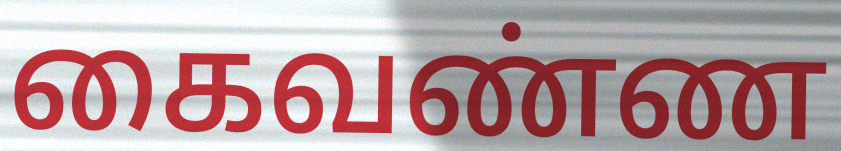
கைவண்ண